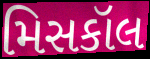
મિસકૉલ